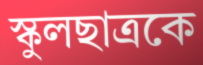
স্কুলছাত্রকে